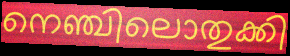
നെഞ്ചിലൊതുക്കി